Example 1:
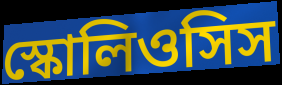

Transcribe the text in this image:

স্কোলিওসিস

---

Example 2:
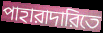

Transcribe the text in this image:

পাহারাদারিতে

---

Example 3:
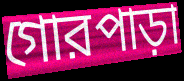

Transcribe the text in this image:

গোরপাড়া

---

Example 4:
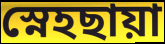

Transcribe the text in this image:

স্নেহছায়া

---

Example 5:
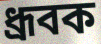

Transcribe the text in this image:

ধ্রূবক